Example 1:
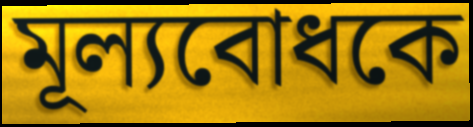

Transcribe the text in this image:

মূল্যবোধকে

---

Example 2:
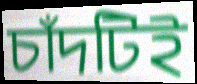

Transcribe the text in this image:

চাঁদটিই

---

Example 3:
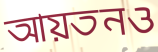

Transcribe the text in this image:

আয়তনও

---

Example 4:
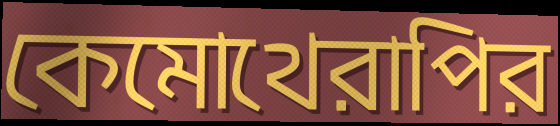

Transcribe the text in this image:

কেমোথেরাপির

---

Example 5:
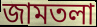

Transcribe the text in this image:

জামতলা